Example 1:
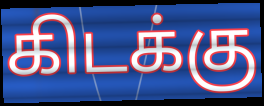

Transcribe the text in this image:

கிடக்கு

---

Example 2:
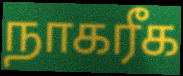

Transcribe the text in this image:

நாகரீக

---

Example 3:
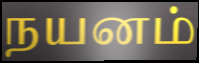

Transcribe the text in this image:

நயனம்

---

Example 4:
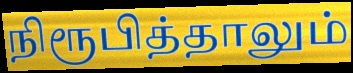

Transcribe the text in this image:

நிரூபித்தாலும்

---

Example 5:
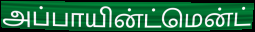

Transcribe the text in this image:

அப்பாயின்ட்மென்ட்